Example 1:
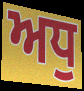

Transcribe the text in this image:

ਅਧੁ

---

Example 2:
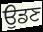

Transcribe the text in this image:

ਉਡਣ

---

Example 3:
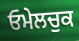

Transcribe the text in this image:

ਓਮੇਲਚੁਕ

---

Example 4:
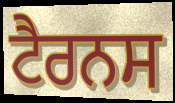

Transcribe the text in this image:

ਟੈਰਨਸ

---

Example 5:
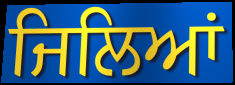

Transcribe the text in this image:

ਜਿਲਿਆਂ